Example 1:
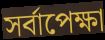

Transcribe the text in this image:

সর্বাপেক্ষা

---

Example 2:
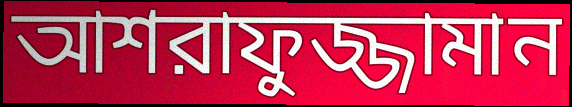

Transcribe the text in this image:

আশরাফুজ্জামান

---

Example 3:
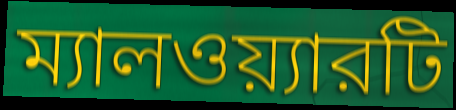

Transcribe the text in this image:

ম্যালওয়্যারটি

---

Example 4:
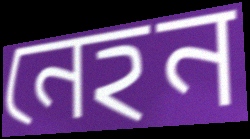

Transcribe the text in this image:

নেহন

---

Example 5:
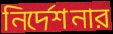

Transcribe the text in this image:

নির্দেশনার